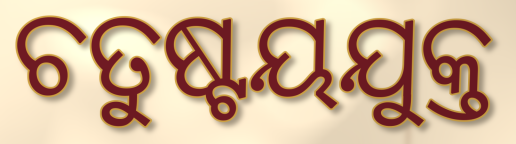
ଚତୁଷ୍ଟୟଯୁକ୍ତ